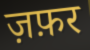
ज़फ़र